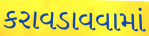
કરાવડાવવામાં